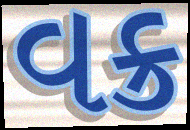
વક્ર